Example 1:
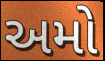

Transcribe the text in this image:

અમો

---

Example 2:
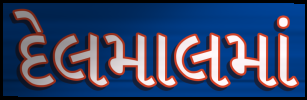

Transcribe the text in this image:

દેલમાલમાં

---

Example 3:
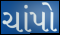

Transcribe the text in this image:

ચાંપો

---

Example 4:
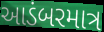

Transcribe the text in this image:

આડંબરમાત્ર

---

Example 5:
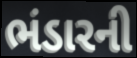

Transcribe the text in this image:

ભંડારની